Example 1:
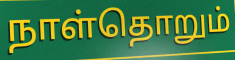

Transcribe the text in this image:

நாள்தொறும்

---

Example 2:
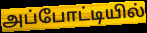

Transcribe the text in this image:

அப்போட்டியில்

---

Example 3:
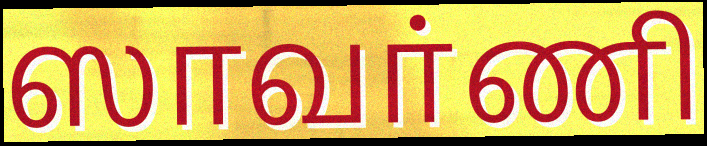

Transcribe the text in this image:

ஸாவர்ணி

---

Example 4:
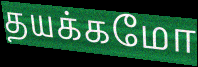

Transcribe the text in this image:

தயக்கமோ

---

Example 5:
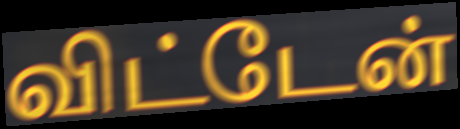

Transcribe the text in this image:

விட்டேன்